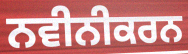
ਨਵੀਨੀਕਰਨ